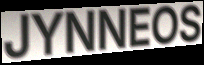
JYNNEOS